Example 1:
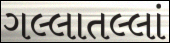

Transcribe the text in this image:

ગલ્લાતલ્લાં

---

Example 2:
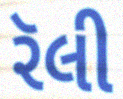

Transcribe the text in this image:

રૅલી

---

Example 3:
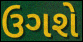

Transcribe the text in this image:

ઉગશે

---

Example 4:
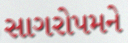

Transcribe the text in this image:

સાગરોપમને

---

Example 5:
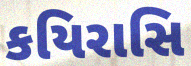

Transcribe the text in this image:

કયિરાસિ